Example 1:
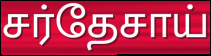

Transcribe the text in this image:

சர்தேசாய்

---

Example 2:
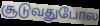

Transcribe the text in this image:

சூடுவதுபோல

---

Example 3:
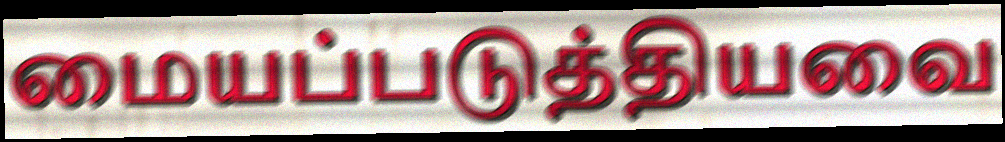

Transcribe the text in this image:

மையப்படுத்தியவை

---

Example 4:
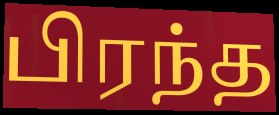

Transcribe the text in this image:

பிரந்த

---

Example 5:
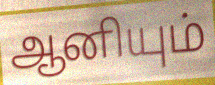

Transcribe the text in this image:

ஆனியும்